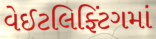
વેઈટલિફ્ટિંગમાં